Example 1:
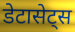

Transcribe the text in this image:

डेटासेट्स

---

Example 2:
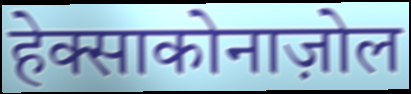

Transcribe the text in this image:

हेक्साकोनाज़ोल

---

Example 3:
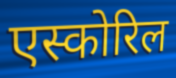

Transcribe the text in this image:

एस्कोरिल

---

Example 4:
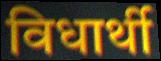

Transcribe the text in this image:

विधार्थी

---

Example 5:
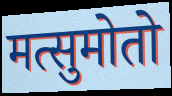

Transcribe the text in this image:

मत्सुमोतो